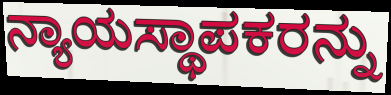
ನ್ಯಾಯಸ್ಥಾಪಕರನ್ನು